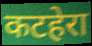
कटहेरा